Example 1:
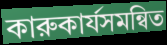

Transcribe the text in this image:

কারুকার্যসমন্বিত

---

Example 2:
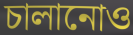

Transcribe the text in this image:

চালানোও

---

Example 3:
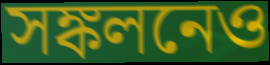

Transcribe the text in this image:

সঙ্কলনেও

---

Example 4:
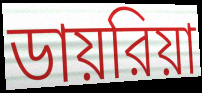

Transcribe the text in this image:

ডায়রিয়া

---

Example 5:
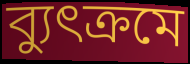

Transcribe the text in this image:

ব্যুৎক্রমে